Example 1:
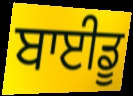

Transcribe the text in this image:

ਬਾਈਡੂ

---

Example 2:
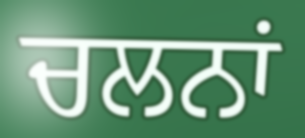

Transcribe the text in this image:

ਚਲਨਾਂ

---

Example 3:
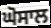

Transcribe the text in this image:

ਘੋਸਾਲ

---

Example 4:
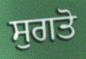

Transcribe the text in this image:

ਸੁਗਤੋ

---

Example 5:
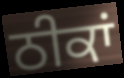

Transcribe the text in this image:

ਠੀਕਾਂ